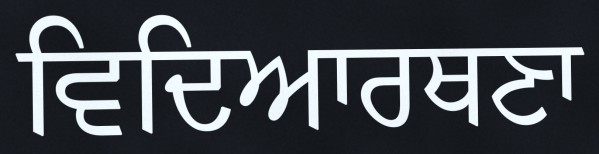
ਵਿਦਿਆਰਥਣਾ